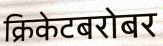
क्रिकेटबरोबर